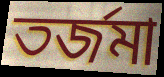
তর্জমা